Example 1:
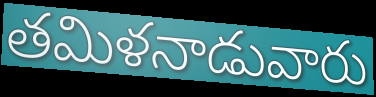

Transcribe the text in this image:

తమిళనాడువారు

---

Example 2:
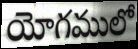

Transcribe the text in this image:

యోగములో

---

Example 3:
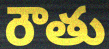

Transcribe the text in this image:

రౌతు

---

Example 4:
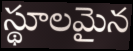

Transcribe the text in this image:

స్థూలమైన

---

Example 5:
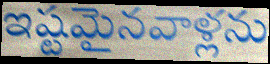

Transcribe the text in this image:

ఇష్టమైనవాళ్లను